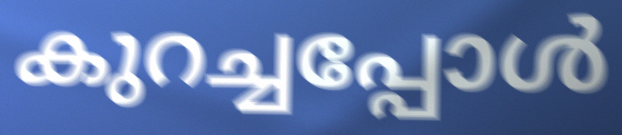
കുറച്ചപ്പോൾ